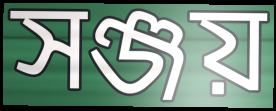
সঞ্জয়